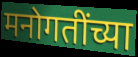
मनोगतींच्या